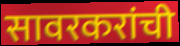
सावरकरांची